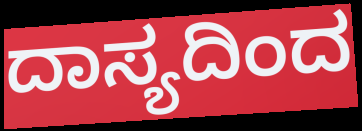
ದಾಸ್ಯದಿಂದ